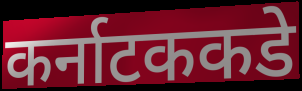
कर्नाटककडे